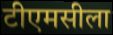
टीएमसीला